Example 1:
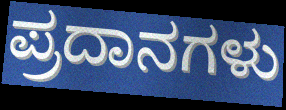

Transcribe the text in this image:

ಪ್ರದಾನಗಳು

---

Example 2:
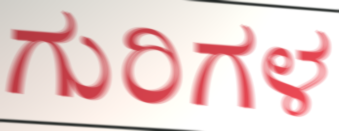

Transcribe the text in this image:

ಗುರಿಗಳ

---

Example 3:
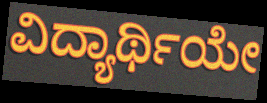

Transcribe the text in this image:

ವಿದ್ಯಾರ್ಥಿಯೇ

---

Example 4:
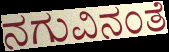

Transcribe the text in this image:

ನಗುವಿನಂತೆ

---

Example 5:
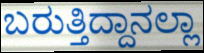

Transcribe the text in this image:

ಬರುತ್ತಿದ್ದಾನಲ್ಲಾ